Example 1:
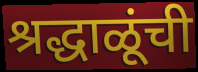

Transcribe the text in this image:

श्रद्धाळूंची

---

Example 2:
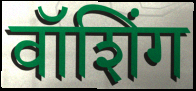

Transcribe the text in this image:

वॉशिंग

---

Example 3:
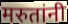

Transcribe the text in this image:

मरुतांनी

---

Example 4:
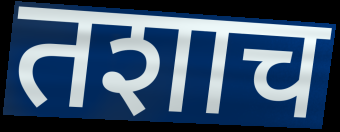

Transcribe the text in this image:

तशाच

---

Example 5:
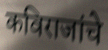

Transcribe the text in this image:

कविराजांचे